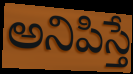
అనిపిస్తే